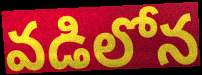
వడిలోన